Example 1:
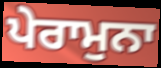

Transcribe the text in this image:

ਪੇਰਾਮੁਨਾ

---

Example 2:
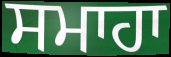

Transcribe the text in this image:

ਸਮਾਹਾ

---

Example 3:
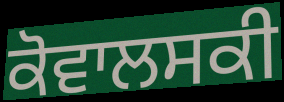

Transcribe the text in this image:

ਕੋਵਾਲਸਕੀ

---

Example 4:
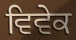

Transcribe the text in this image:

ਵਿਵੇਕ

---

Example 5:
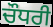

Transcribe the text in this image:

ਚੌਧਰੀ